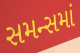
સમન્સમાં